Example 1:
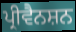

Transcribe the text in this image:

ਪ੍ਰੀਵੈਨਸ਼ਨ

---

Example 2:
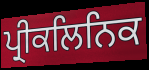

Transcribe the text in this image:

ਪ੍ਰੀਕਲਿਨਿਕ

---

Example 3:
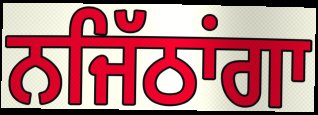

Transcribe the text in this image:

ਨਜਿੱਠਾਂਗਾ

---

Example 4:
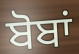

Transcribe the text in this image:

ਬੋਬਾਂ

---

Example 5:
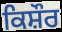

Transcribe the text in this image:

ਕਿਸ਼ੌਰ